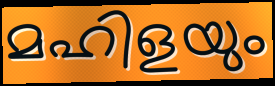
മഹിളയും